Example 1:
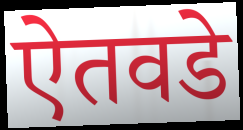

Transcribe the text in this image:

ऐतवडे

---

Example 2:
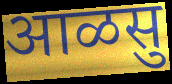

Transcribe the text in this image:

आळसु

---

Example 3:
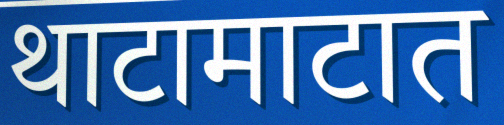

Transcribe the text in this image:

थाटामाटात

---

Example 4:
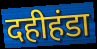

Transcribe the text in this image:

दहीहंडा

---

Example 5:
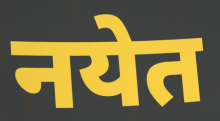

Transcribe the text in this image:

नयेत